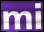
mi